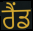
ਰੈਂਡ